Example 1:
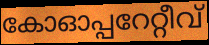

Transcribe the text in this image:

കോഓപ്പറേറ്റീവ്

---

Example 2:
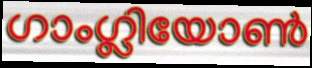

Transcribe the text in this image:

ഗാംഗ്ലിയോൺ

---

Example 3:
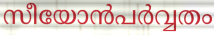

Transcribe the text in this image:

സീയോൻപർവ്വതം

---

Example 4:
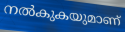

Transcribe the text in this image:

നൽകുകയുമാണ്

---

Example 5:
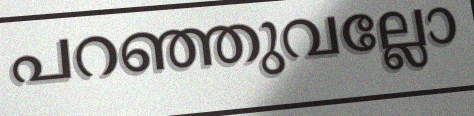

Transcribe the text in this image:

പറഞ്ഞുവല്ലോ